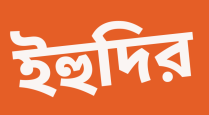
ইহুদির